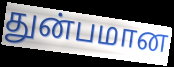
துன்பமான